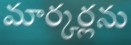
మార్కర్లను